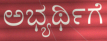
ಅಭ್ಯರ್ಥಿಗೆ